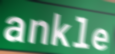
ankle